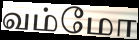
வம்மோ